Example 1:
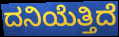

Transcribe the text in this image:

ದನಿಯೆತ್ತಿದೆ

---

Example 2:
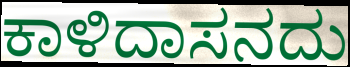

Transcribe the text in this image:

ಕಾಳಿದಾಸನದು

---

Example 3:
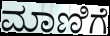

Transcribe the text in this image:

ಮಾಣಿಗೆ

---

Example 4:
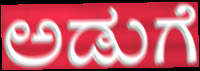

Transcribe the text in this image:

ಅಡುಗೆ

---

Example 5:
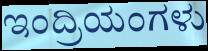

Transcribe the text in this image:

ಇಂದ್ರಿಯಂಗಳು